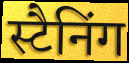
स्टैनिंग